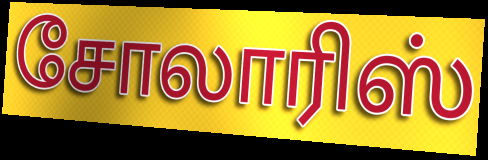
சோலாரிஸ்